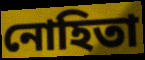
নোহিতা